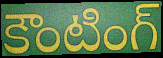
కౌంటింగ్